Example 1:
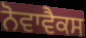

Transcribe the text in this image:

ਨੋਵਾਵੈਕਸ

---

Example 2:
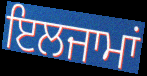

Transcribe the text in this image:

ਇਲਜਾਮਾਂ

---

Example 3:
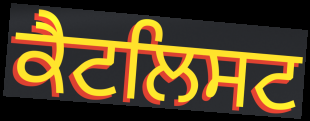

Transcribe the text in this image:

ਕੈਟਲਿਸਟ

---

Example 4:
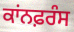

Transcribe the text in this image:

ਕਾਂਨਫ਼ਰੰਸ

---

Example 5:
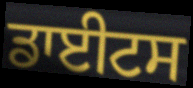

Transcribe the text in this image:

ਡਾਈਟਸ